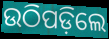
ଉଠିପଡ଼ିଲେ